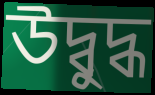
উদ্বুদ্ধ